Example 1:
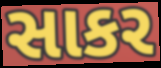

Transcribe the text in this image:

સાકર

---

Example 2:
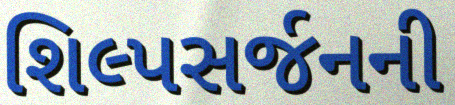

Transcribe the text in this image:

શિલ્પસર્જનની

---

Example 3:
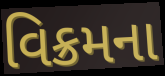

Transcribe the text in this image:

વિક્રમના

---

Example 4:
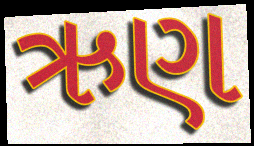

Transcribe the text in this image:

ઋણ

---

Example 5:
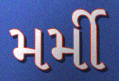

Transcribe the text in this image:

મર્મી